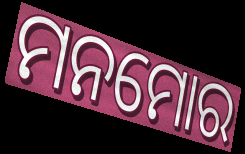
ମନମୋର